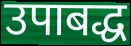
उपाबद्ध